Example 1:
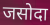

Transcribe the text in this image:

जसोदा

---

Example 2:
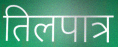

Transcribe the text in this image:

तिलपात्र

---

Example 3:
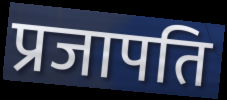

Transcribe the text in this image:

प्रजापति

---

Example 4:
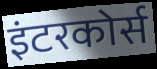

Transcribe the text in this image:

इंटरकोर्स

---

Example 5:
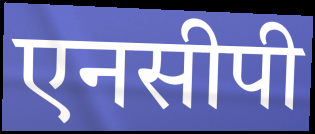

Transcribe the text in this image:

एनसीपी